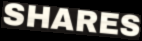
SHARES